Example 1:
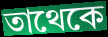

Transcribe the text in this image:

তাথেকে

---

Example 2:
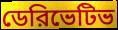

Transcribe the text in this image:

ডেরিভেটিভ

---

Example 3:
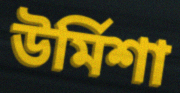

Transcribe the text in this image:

উর্মিশা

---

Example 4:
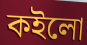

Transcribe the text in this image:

কইলো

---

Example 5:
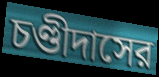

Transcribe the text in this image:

চণ্ডীদাসের